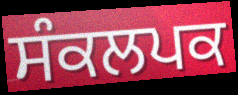
ਸੰਕਲਪਕ